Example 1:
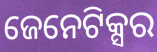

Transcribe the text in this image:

ଜେନେଟିକ୍ସର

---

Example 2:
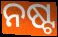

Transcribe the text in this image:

ନଷ୍ଟ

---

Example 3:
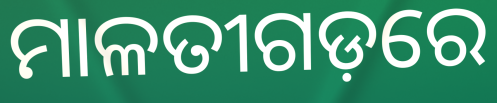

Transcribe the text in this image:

ମାଳତୀଗଡ଼ରେ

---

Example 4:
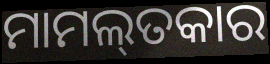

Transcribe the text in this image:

ମାମଲ୍‌ତକାର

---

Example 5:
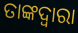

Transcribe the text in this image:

ତାଙ୍କଦ୍ୱାରା